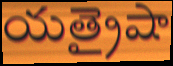
యత్రైషా